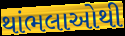
થાંભલાઓથી